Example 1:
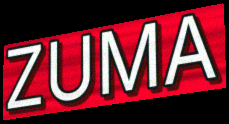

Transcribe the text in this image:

ZUMA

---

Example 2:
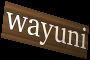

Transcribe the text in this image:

wayuni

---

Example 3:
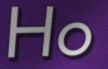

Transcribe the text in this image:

Ho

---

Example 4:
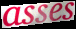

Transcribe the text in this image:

asses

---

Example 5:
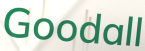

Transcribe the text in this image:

Goodall